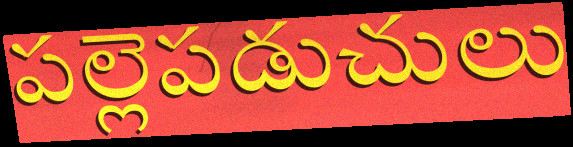
పల్లెపడుచులు